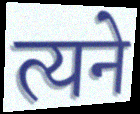
त्यने